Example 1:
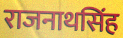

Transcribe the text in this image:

राजनाथसिंह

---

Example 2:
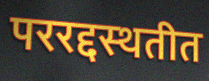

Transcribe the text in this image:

पररद्दस्थतीत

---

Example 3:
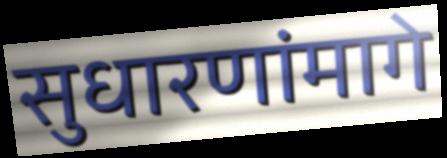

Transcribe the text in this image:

सुधारणांमागे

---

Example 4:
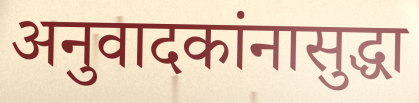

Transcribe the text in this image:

अनुवादकांनासुद्धा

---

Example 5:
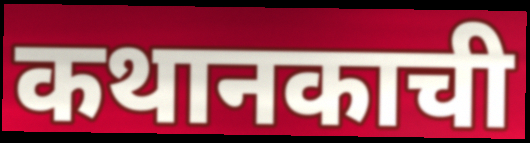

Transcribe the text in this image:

कथानकाची